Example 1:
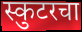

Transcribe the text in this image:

स्कुटरचा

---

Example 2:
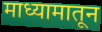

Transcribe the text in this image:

माध्यामातून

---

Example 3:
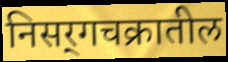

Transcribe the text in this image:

निसर्गचक्रातील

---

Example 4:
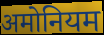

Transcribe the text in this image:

अमोनियम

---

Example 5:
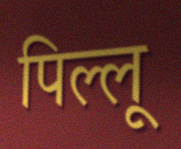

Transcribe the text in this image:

पिल्लू